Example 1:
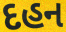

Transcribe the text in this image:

દહન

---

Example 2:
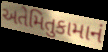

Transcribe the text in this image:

અતેમિતુકામાનં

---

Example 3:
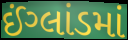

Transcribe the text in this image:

ઈંગ્લાંડમાં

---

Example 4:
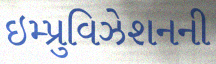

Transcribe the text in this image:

ઇમ્પ્રુવિઝેશનની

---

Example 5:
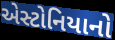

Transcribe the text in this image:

એસ્ટોનિયાનો